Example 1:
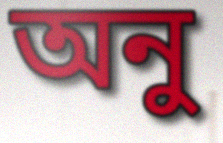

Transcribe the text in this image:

অনু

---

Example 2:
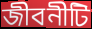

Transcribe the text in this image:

জীবনীটি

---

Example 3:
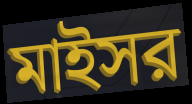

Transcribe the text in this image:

মাইসর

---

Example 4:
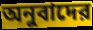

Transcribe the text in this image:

অনুবাদের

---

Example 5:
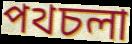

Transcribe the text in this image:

পথচলা